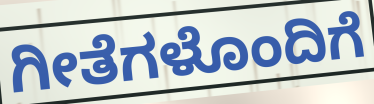
ಗೀತೆಗಳೊಂದಿಗೆ